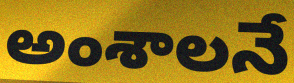
అంశాలనే